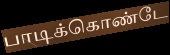
பாடிக்கொண்டே